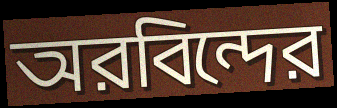
অরবিন্দের